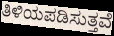
ತಿಳಿಯಪಡಿಸುತ್ತವೆ